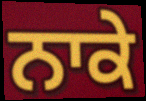
ਨਾਕੇ